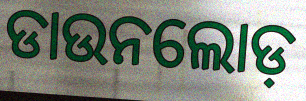
ଡାଉନଲୋଡ଼